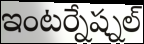
ఇంటర్నేష్నల్